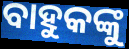
ବାହୁକଙ୍କୁ